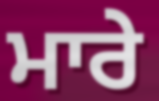
ਮਾਰੇ